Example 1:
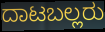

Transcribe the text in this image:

ದಾಟಬಲ್ಲರು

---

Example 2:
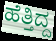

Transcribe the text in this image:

ಹೆತ್ತಿದ್ದ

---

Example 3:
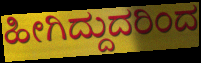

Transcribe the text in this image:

ಹೀಗಿದ್ದುದರಿಂದ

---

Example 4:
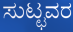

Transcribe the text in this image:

ಸುಟ್ಟವರ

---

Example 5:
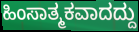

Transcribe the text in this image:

ಹಿಂಸಾತ್ಮಕವಾದದ್ದು